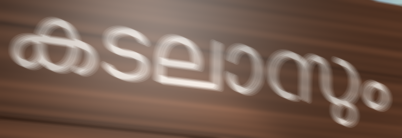
കടലാസും